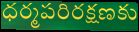
ధర్మపరిరక్షణకు